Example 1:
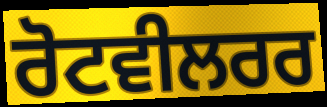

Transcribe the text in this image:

ਰੋਟਵੀਲਰਰ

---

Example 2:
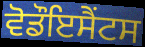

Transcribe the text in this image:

ਵੋਡੌਇਸੈਂਟਸ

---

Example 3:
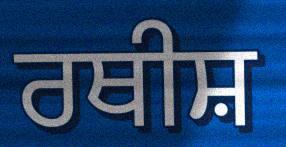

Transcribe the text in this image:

ਰਥੀਸ਼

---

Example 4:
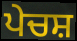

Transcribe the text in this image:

ਪੇਚਸ਼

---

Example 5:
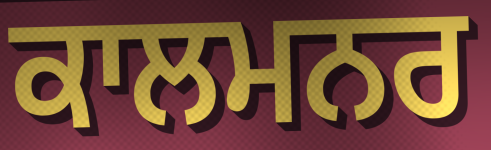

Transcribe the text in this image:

ਕਾਲਮਨਰ